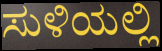
ಸುಳಿಯಲ್ಲಿ